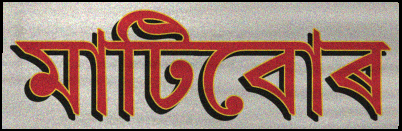
মাটিবোৰ